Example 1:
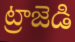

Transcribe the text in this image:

ట్రాజెడి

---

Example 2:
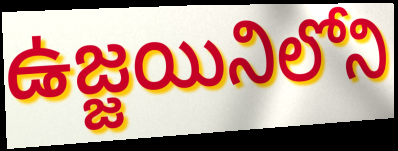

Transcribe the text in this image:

ఉజ్జయినిలోని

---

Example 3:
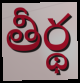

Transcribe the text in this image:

తీర్థ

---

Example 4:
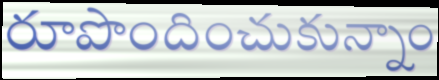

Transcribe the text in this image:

రూపొందించుకున్నాం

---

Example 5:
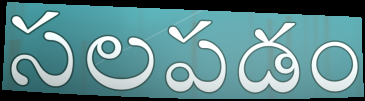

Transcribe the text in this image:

సలపడం